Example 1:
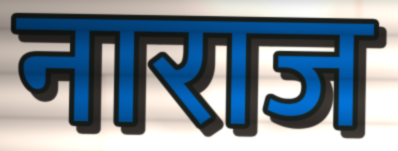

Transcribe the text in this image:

नाराज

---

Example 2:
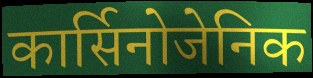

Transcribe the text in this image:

कार्सिनोजेनिक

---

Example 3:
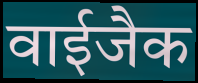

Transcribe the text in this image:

वाईजैक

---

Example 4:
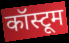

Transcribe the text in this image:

कॉस्टूम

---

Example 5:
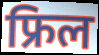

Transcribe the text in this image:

फ्रिल